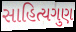
સાહિત્યગુણ